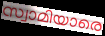
സ്വാമിയാരെ